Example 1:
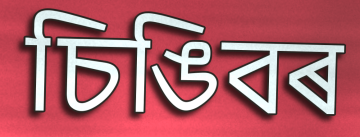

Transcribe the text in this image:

চিঙিবৰ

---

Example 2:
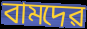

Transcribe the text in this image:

বামদেৱ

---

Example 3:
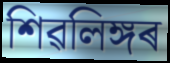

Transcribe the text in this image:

শিৱলিঙ্গৰ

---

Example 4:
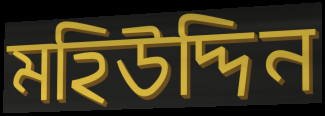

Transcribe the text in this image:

মহিউদ্দিন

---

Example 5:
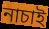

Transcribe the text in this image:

নাচাই